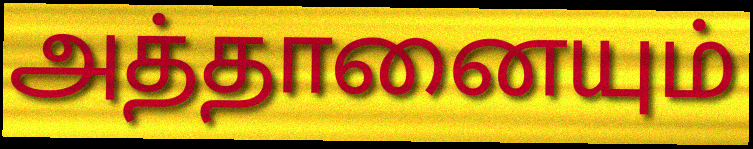
அத்தானையும்